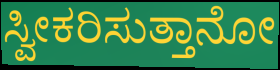
ಸ್ವೀಕರಿಸುತ್ತಾನೋ